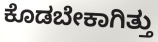
ಕೊಡಬೇಕಾಗಿತ್ತು